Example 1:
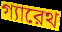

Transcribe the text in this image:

গ্যারেথ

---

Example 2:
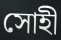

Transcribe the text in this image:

সোহী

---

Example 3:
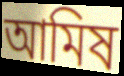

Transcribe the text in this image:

আমিষ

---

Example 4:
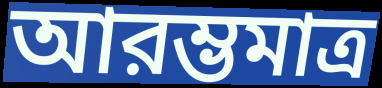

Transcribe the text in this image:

আরম্ভমাত্র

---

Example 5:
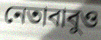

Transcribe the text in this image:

নেতাবাবুও